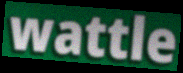
wattle